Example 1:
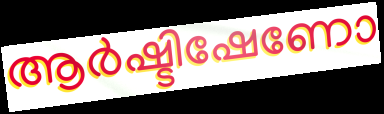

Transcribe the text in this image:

ആർഷ്ടിഷേണോ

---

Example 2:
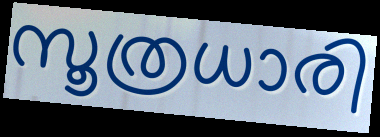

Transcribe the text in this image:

സൂത്രധാരി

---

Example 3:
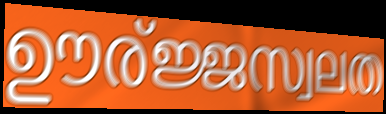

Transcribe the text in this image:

ഊര്ജ്ജസ്വലത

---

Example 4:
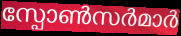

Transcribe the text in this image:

സ്പോൺസർമാർ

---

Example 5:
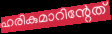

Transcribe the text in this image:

ഹരികുമാറിന്റേത്